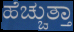
ಹೆಚ್ಚುತ್ತಾ